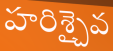
హరిశ్చైవ